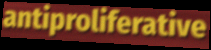
antiproliferative